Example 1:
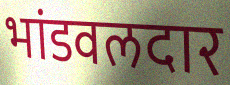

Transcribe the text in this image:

भांडवलदार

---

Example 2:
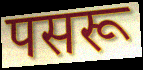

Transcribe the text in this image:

पसरू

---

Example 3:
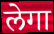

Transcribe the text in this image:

लेगा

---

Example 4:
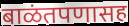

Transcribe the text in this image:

बाळंतपणासह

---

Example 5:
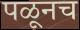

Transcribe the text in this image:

पळूनच